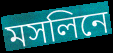
মসলিনে